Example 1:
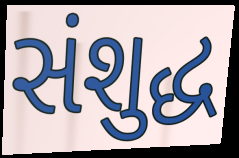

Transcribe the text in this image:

સંશુદ્ધ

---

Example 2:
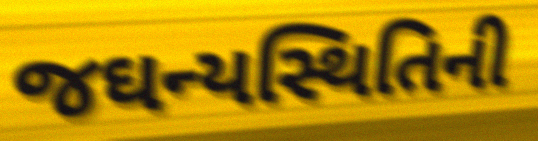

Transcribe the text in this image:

જઘન્યસ્થિતિની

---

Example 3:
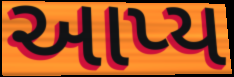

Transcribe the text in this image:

આપ્ય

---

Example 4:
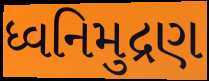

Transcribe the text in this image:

ધ્વનિમુદ્રણ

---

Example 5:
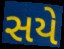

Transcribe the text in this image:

સયે